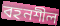
বহনশীল